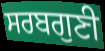
ਸਰਬਗੁਣੀ